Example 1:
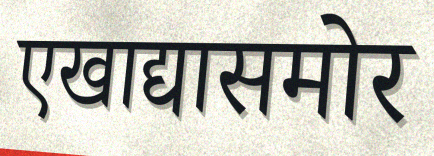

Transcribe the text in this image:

एखाद्यासमोर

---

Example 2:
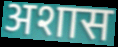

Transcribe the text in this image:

अशास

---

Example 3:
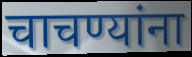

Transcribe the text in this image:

चाचण्यांना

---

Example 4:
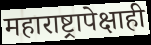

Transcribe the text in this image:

महाराष्ट्रापेक्षाही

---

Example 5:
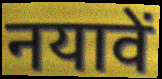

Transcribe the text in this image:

नयावें